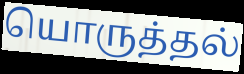
யொருத்தல்